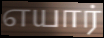
எயார்